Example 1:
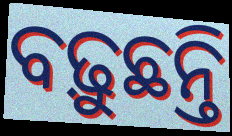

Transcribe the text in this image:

ବଢ଼ୁଛନ୍ତି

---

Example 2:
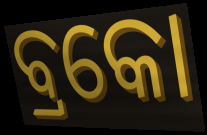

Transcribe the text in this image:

ବ୍ରକୋ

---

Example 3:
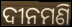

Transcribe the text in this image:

ଦୀନମଣି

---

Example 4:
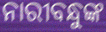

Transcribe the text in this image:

ନାରୀବନ୍ଧୁଙ୍କ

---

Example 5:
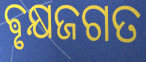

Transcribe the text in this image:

ଵୃକ୍ଷଜଗତ